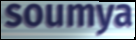
soumya